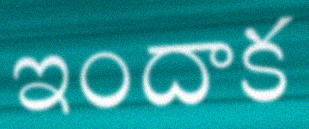
ఇందాక